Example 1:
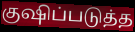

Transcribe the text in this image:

குஷிப்படுத்த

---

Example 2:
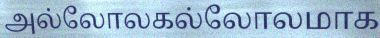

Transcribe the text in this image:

அல்லோலகல்லோலமாக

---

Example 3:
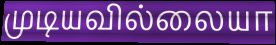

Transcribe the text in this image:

முடியவில்லையா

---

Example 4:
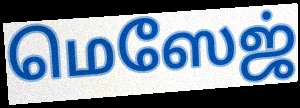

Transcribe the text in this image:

மெஸேஜ்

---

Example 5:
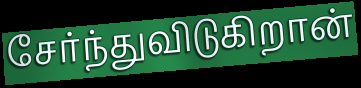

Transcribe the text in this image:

சேர்ந்துவிடுகிறான்